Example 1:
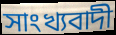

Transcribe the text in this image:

সাংখ্যবাদী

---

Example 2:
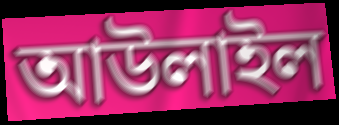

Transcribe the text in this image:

আউলাইল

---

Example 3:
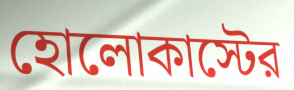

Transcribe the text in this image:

হোলোকাস্টের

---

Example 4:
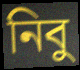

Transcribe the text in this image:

নিবু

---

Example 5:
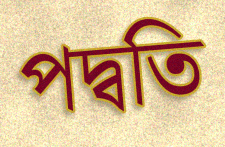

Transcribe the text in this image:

পদ্বতি